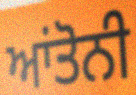
ਆਂਤੋਨੀ